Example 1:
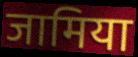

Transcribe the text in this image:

जामिया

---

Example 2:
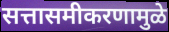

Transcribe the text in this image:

सत्तासमीकरणामुळे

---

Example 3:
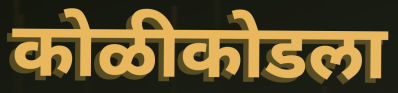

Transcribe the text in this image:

कोळीकोडला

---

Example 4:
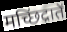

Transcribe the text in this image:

मच्छिंद्रातें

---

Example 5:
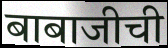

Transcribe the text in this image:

बाबाजीची